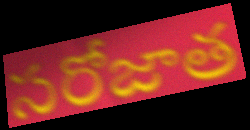
సరోజాత